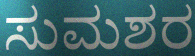
ಸುಮಶರ